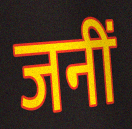
जनीं